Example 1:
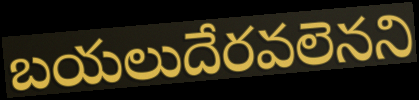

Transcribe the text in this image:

బయలుదేరవలెనని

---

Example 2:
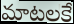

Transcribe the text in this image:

మాటలకే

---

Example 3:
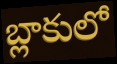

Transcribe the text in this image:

బ్లాకులో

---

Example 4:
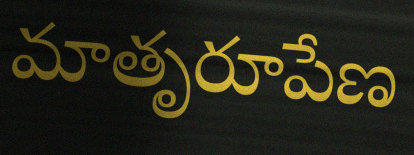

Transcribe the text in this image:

మాతృరూపేణ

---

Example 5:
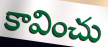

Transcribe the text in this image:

కావించు